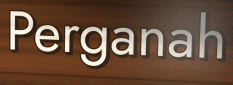
Perganah